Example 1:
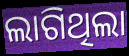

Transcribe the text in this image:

ଲାଗିଥିଲା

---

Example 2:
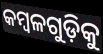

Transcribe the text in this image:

କମ୍ବଳଗୁଡ଼ିକୁ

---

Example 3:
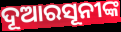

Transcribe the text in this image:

ଦୂଆରସୂନୀଙ୍କ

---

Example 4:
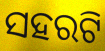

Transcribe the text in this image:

ସହରଟି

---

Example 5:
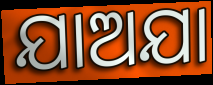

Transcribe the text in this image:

ଯାଅଯା